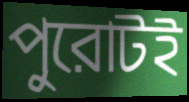
পুরোটই